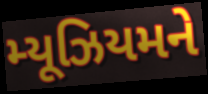
મ્યૂઝિયમને